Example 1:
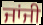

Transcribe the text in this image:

ਜਾਂਜੀ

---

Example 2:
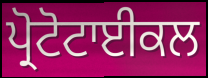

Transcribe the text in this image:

ਪ੍ਰੋਟੋਟਾਈਕਲ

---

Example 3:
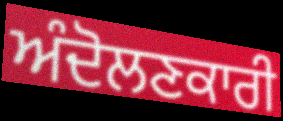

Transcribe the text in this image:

ਅੰਦੋਲਣਕਾਰੀ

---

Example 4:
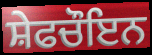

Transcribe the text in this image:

ਸ਼ੇਫਚੌਇਨ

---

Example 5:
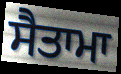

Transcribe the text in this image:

ਸੈਤਾਮਾ